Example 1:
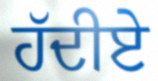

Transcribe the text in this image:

ਹੱਦੀਏ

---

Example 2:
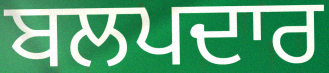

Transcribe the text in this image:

ਬਲਪਦਾਰ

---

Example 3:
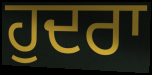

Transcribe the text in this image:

ਹੁਦਰਾ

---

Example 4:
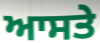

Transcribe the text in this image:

ਆਸਤੇ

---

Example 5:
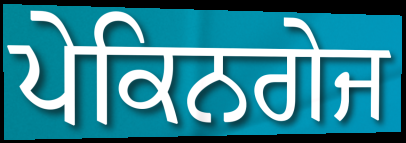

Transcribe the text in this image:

ਪੇਕਿਨਗੇਜ